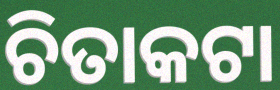
ଚିତାକଟା